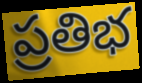
ప్రతిభ